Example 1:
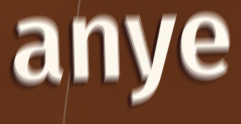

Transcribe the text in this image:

anye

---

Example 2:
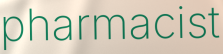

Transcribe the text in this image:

pharmacist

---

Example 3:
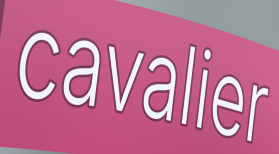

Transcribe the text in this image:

cavalier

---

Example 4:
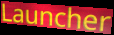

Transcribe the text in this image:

Launcher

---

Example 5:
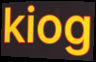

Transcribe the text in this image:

kiog